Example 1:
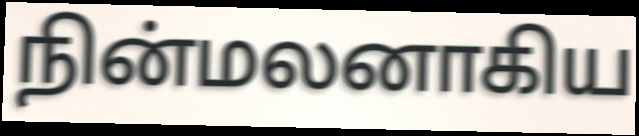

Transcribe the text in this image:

நின்மலனாகிய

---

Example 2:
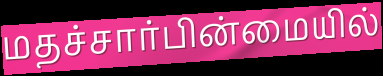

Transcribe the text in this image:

மதச்சார்பின்மையில்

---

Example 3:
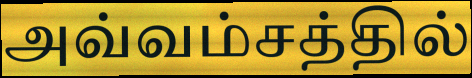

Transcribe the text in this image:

அவ்வம்சத்தில்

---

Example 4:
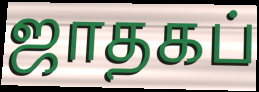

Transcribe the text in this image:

ஜாதகப்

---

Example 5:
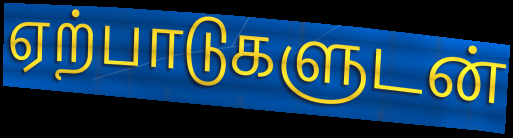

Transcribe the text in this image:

ஏற்பாடுகளுடன்